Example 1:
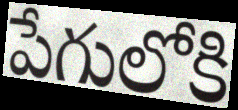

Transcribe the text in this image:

పేగులోకి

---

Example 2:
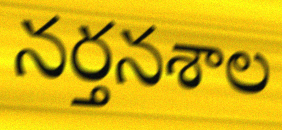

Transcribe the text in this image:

నర్తనశాల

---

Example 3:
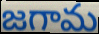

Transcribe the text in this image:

జగామ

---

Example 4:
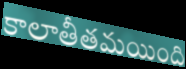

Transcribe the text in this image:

కాలాతీతమయింది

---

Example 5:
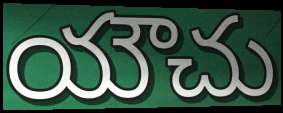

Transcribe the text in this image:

యౌచు